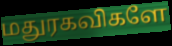
மதுரகவிகளே